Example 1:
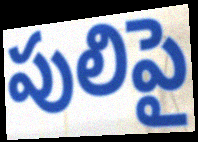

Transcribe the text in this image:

పులిపై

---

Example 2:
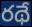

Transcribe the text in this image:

రథే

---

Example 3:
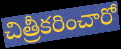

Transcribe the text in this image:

చిత్రీకరించారో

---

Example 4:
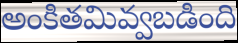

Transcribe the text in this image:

అంకితమివ్వబడింది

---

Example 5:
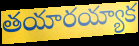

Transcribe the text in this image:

తయారయ్యాక